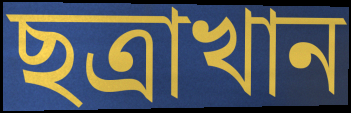
ছত্রাখান